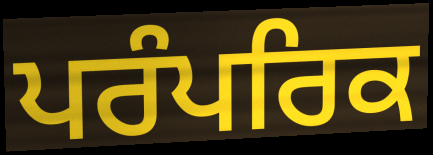
ਪਰੰਪਰਿਕ